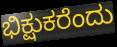
ಭಿಕ್ಷುಕರೆಂದು